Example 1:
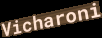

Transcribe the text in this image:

Vicharoni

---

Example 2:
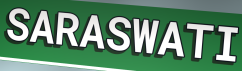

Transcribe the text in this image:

SARASWATI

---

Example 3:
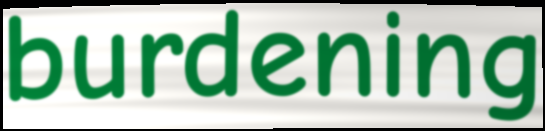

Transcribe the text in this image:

burdening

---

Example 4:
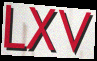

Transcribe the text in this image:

LXV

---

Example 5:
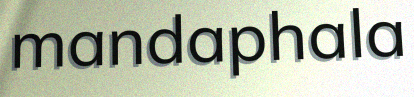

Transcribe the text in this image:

mandaphala